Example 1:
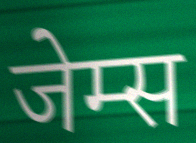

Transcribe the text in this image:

जेम्स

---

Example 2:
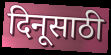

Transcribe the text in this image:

दिनूसाठी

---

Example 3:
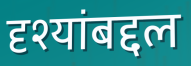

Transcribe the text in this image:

दृश्यांबद्दल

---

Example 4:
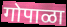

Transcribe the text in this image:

गोपाळा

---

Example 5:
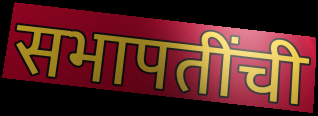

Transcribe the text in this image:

सभापतींची